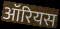
ऑरियस